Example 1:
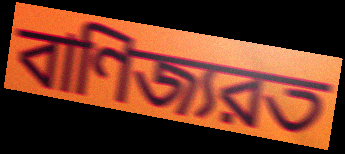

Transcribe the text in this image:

বাণিজ্যরত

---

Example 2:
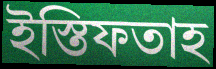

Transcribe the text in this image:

ইস্তিফতাহ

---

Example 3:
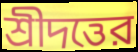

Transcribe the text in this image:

শ্রীদত্তের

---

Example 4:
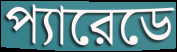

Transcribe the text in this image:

প্যারেডে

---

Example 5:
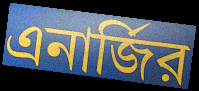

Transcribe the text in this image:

এনার্জির